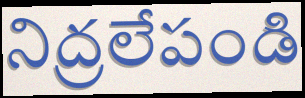
నిద్రలేపండి